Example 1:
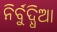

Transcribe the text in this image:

ନିର୍ବୁଦ୍ଧିଆ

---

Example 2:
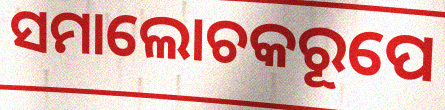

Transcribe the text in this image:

ସମାଲୋଚକରୂପେ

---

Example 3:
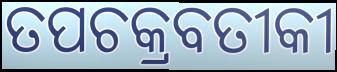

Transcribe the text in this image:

ତପଚକ୍ରବତୀକୀ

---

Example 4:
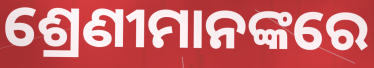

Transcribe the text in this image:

ଶ୍ରେଣୀମାନଙ୍କରେ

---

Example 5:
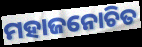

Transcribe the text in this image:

ମହାଜନୋଚିତ